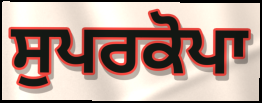
ਸੁਪਰਕੋਪਾ